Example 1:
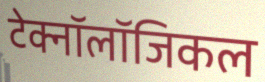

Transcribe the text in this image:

टेक्नॉलॉजिकल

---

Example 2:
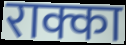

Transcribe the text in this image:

राक्का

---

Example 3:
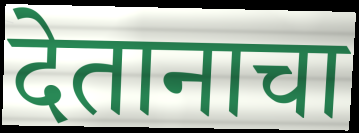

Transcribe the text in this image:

देतानाचा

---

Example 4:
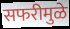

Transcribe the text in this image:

सफरीमुळे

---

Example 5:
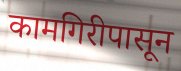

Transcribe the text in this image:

कामगिरीपासून